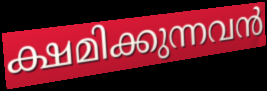
ക്ഷമിക്കുന്നവൻ